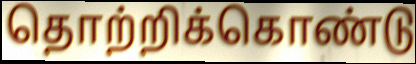
தொற்றிக்கொண்டு